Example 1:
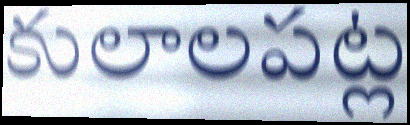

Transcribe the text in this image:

కులాలపట్ల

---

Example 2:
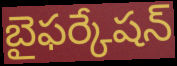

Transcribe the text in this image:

బైఫర్కేషన్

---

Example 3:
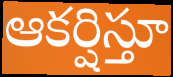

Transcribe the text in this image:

ఆకర్షిస్తూ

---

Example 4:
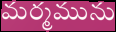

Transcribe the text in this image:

మర్మమును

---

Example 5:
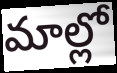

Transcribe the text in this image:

మాల్లో